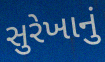
સુરેખાનું